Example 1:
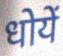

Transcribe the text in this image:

धोयें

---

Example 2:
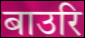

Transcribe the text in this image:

बाउरि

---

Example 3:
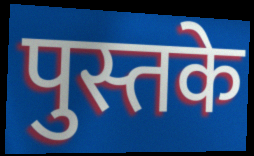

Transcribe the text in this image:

पुस्‍तके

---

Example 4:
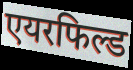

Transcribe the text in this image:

एयरफिल्ड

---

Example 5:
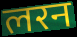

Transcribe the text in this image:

लरन